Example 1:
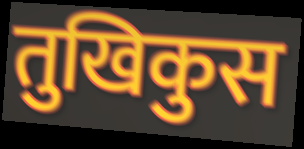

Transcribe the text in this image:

तुखिकुस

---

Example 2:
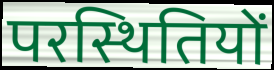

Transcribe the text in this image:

परस्थितियों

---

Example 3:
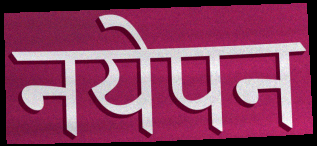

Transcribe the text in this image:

नयेपन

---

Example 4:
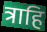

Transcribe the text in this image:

त्राहि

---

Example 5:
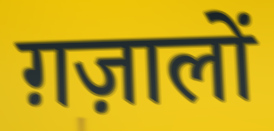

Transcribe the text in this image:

ग़ज़ालों